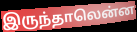
இருந்தாலென்ன